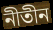
নীতীন